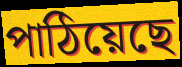
পাঠিয়েছে